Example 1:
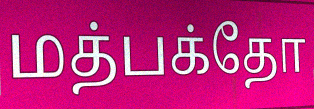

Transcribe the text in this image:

மத்பக்தோ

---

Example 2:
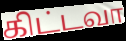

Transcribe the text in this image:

கிட்டவா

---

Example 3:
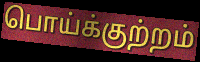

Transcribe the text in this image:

பொய்க்குற்றம்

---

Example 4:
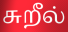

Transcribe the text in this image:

சுறீல்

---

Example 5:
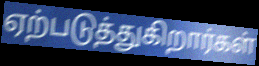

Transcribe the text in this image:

ஏற்படுத்துகிறார்கள்